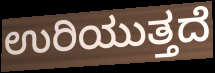
ಉರಿಯುತ್ತದೆ